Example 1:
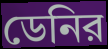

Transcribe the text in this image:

ডেনির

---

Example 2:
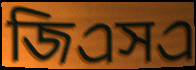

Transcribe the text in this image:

জিএসএ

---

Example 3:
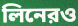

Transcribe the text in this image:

লিনেরও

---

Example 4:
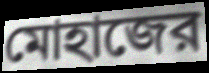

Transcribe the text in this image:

মোহাজের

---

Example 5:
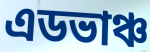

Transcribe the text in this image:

এডভাঞ্চ